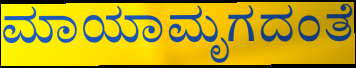
ಮಾಯಾಮೃಗದಂತೆ